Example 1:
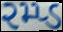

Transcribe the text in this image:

રમ્પ્ડ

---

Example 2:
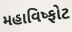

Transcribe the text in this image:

મહાવિષ્ફોટ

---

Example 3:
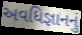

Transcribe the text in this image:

અવધિજ્ઞાનનું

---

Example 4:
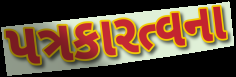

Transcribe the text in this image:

પત્રકારત્વના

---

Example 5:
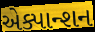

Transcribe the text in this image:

એક્પાન્શન